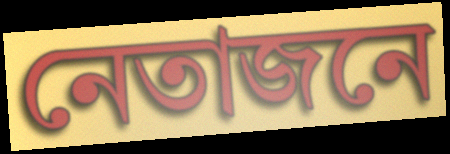
নেতাজনে